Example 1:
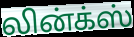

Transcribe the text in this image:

லின்க்ஸ்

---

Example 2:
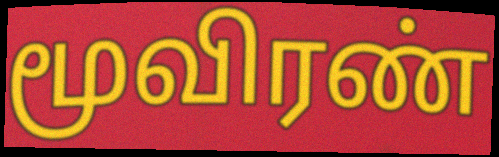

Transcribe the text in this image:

மூவிரண்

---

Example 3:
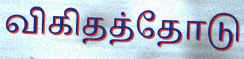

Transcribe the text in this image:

விகிதத்தோடு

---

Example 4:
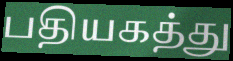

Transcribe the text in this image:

பதியகத்து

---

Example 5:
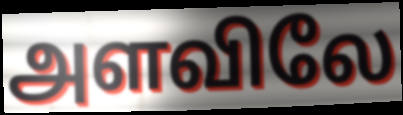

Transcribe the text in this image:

அளவிலே